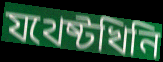
যথেষ্টখিনি